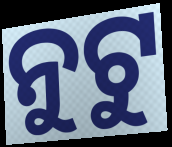
ନୁଟୁ